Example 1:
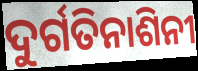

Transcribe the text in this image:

ଦୁର୍ଗତିନାଶିନୀ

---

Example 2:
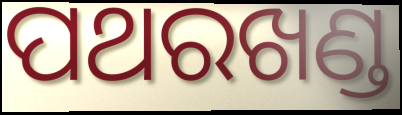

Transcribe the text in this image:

ପଥରଖଣ୍ଡ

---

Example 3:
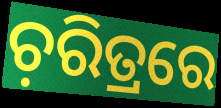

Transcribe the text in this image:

ଚ଼ରିତ୍ରରେ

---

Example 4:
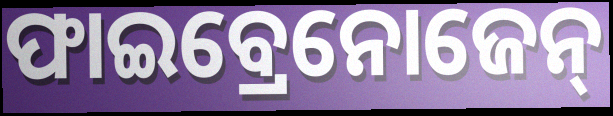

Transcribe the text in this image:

ଫାଇବ୍ରେନୋଜେନ୍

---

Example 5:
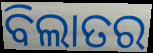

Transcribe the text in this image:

ବିଲାତର